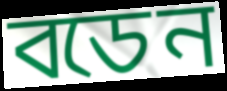
বডেন